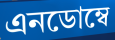
এনডোম্বে